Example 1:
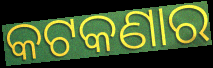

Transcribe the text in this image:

କଟକଣାର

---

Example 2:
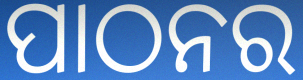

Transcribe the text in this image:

ପାଠନର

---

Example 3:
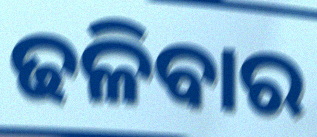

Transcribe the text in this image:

ଢଳିବାର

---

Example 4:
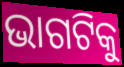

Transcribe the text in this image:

ଭାଗଟିକୁ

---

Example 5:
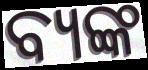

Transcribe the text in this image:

ବ୍ୟଙ୍କ